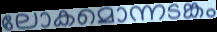
ലോകമൊന്നടങ്കം